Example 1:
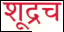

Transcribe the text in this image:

शूद्रच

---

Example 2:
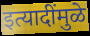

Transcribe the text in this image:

इत्यादींमुळे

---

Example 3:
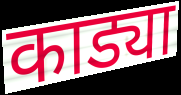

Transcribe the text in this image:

काड्या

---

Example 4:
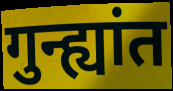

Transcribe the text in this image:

गुन्ह्यांत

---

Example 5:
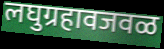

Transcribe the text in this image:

लघुग्रहावजवळ